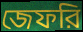
জেফরি